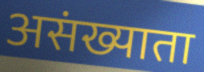
असंख्याता